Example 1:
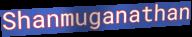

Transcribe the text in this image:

Shanmuganathan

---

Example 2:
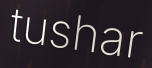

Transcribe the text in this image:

tushar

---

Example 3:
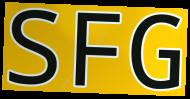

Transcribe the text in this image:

SFG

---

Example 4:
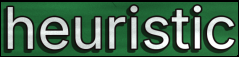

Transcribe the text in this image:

heuristic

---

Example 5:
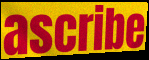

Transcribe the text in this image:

ascribe